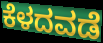
ಕೆಳದವಡೆ